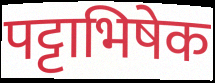
पट्टाभिषेक